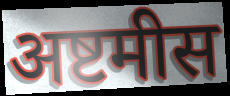
अष्टमीस